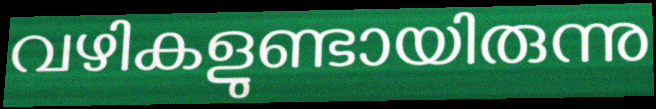
വഴികളുണ്ടായിരുന്നു